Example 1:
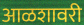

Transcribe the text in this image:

आळशावरी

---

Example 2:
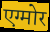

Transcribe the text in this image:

एग्मोर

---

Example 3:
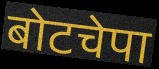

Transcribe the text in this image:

बोटचेपा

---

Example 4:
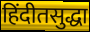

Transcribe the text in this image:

हिंदीतसुद्धा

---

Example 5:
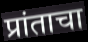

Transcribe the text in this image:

प्रांताचा